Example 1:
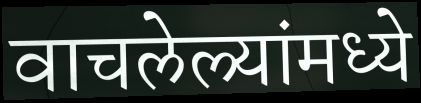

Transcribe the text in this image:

वाचलेल्यांमध्ये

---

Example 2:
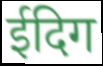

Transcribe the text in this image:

ईदिग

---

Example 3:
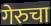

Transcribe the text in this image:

गेरुचा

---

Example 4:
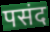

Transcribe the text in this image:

पसंद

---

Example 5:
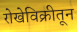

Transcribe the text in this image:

रोखेविक्रीतून